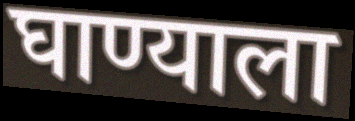
घाण्याला